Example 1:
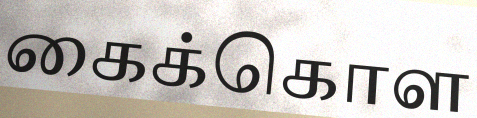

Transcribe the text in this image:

கைக்கொள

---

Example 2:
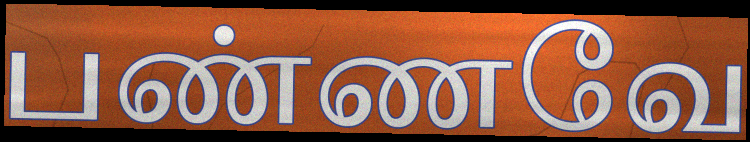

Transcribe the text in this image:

பண்ணவே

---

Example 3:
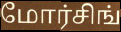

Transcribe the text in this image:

மோர்சிங்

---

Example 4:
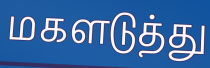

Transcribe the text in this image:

மகளடுத்து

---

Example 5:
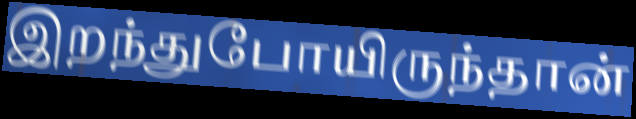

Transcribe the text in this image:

இறந்துபோயிருந்தான்